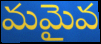
మమైవ